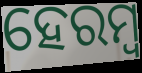
ହେରମ୍ୱ